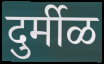
दुर्मीळ